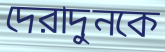
দেরাদুনকে